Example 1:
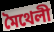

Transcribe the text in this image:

মৈথেলী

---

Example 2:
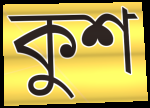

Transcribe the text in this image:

কুশ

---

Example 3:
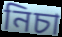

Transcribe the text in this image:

নিচা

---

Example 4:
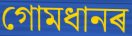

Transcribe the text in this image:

গোমধানৰ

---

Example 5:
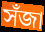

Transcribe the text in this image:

সঁজা